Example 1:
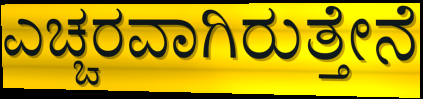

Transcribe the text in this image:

ಎಚ್ಚರವಾಗಿರುತ್ತೇನೆ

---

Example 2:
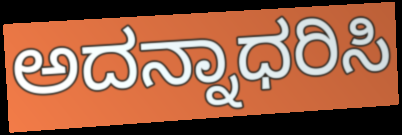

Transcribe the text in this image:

ಅದನ್ನಾಧರಿಸಿ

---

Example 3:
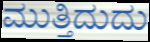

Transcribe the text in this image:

ಮುತ್ತಿದುದು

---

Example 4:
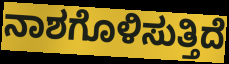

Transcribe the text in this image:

ನಾಶಗೊಳಿಸುತ್ತಿದೆ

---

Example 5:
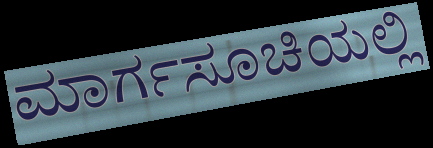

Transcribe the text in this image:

ಮಾರ್ಗಸೂಚಿಯಲ್ಲಿ